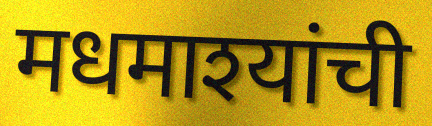
मधमाश्‍यांची